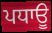
ਪਧਾਊ